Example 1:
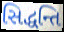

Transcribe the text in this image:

સિદ્ધન્તિ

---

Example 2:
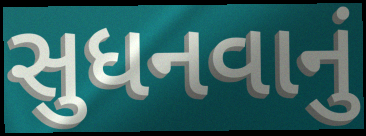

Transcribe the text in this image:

સુધનવાનું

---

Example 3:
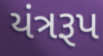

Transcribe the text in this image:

યંત્રરૂપ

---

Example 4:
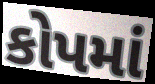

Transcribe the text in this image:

કોપમાં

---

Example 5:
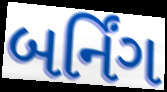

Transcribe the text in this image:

બર્નિંગ